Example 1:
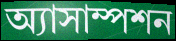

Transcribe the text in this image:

অ্যাসাম্পশন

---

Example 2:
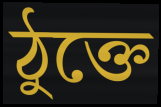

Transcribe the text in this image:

ঠুক্তে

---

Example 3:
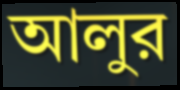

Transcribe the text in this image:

আলুর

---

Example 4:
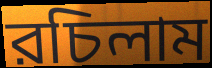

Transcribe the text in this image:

রচিলাম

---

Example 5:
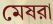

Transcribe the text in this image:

মেষরা